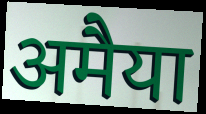
अमैया